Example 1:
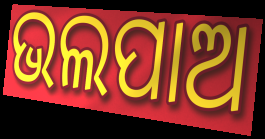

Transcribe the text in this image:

ଭଲପାଅ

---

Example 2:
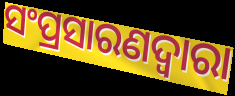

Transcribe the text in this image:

ସଂପ୍ରସାରଣଦ୍ଵାରା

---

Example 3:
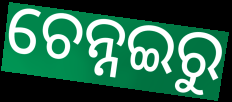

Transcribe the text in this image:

ଚେନ୍ନଇରୁ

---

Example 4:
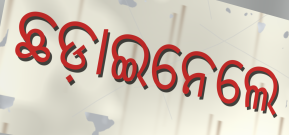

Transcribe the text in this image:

ଛଡ଼ାଇନେଲେ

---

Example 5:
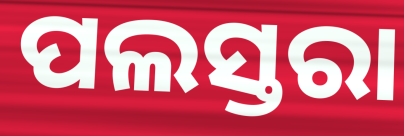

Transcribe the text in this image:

ପଲସ୍ତରା